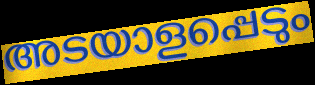
അടയാളപ്പെടും